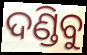
ଦଣ୍ଡିବୁ